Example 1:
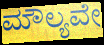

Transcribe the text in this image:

ಮೌಲ್ಯವೇ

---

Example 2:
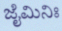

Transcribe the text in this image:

ಜೈಮಿನಿಃ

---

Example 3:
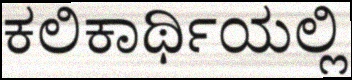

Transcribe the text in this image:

ಕಲಿಕಾರ್ಥಿಯಲ್ಲಿ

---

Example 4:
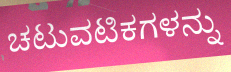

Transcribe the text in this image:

ಚಟುವಟಿಕಗಳನ್ನು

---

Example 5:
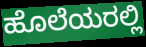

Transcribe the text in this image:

ಹೊಲೆಯರಲ್ಲಿ